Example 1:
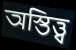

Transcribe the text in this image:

অস্তিত্ত্ব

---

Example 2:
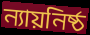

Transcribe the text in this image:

ন্যায়নিষ্ঠ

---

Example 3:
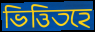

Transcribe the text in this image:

ভিত্তিতহে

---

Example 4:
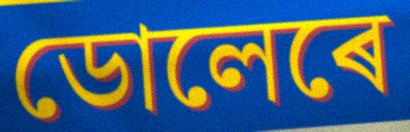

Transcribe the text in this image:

ডোলেৰে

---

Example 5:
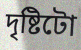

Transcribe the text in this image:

দৃষ্টিটো